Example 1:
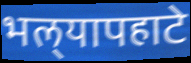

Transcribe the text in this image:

भल्यापहाटे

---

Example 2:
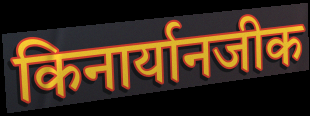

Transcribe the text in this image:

किनार्यानजीक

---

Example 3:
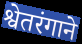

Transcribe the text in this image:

श्वेतरंगाने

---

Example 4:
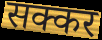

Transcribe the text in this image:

सक्कर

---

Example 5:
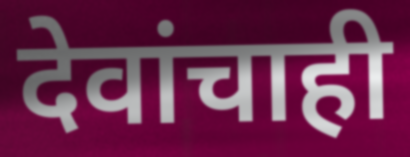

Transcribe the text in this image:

देवांचाही